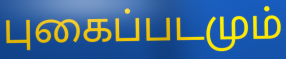
புகைப்படமும்